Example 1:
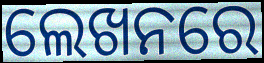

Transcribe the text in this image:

ଲେଖନରେ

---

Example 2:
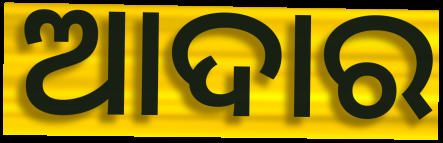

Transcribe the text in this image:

ଆଦାର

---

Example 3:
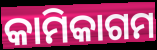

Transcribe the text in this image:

କାମିକାଗମ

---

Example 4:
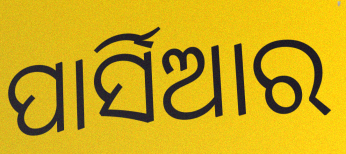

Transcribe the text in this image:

ପାର୍ସିଆର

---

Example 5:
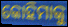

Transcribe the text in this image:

କୋହିମାକୁ